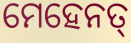
ମେହେନତ୍